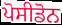
ਪੋਸੀਡੋਨ